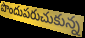
పొందుపరుచుకున్న